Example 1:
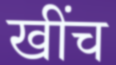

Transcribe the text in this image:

खींच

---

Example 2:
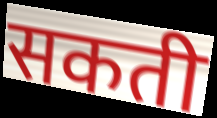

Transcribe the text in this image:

सकती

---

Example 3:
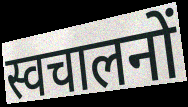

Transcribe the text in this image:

स्वचालनों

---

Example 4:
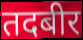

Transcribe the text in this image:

तदबीर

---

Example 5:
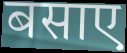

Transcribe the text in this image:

बसाए